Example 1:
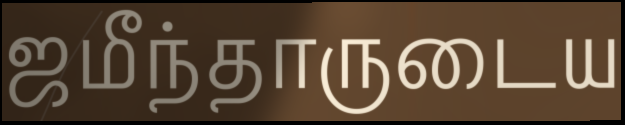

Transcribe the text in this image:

ஜமீந்தாருடைய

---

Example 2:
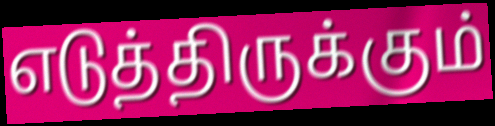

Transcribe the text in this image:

எடுத்திருக்கும்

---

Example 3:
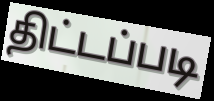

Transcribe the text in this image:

திட்டப்படி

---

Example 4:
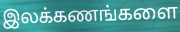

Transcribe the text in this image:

இலக்கணங்களை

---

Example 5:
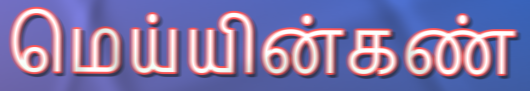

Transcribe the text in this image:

மெய்யின்கண்